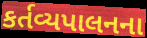
કર્તવ્યપાલનના